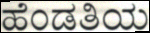
ಹೆಂಡತಿಯ